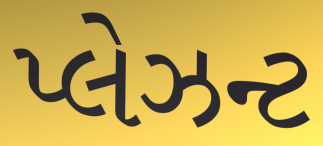
પ્લેઝન્ટ